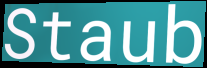
Staub